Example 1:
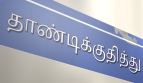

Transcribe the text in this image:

தாண்டிக்குதித்து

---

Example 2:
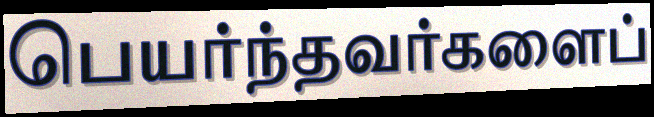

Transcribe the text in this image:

பெயர்ந்தவர்களைப்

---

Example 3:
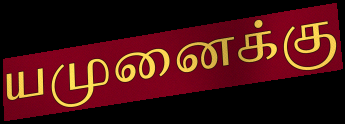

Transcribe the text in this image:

யமுனைக்கு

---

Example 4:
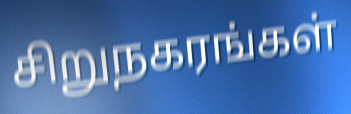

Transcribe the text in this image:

சிறுநகரங்கள்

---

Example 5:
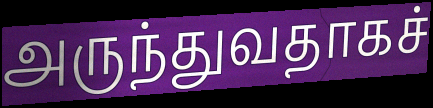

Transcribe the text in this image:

அருந்துவதாகச்